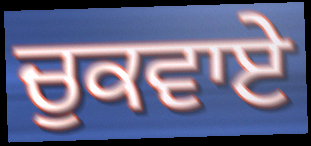
ਚੁਕਵਾਏ